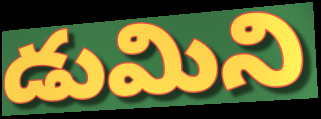
డుమిని